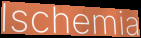
Ischemia